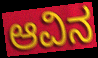
ಆವಿನ